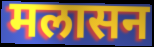
मलासन